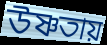
উষ্ণতায়